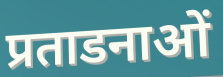
प्रताडनाओं